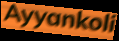
Ayyankoli